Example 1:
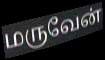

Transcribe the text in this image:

மருவேன்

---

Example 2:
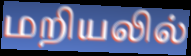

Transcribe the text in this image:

மறியலில்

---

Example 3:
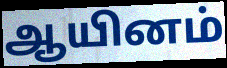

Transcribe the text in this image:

ஆயினம்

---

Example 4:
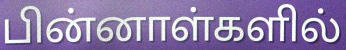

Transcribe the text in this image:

பின்னாள்களில்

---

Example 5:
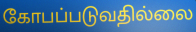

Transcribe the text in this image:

கோபப்படுவதில்லை